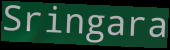
Sringara